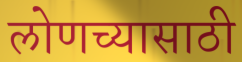
लोणच्यासाठी